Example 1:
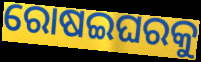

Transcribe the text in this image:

ରୋଷଇଘରକୁ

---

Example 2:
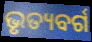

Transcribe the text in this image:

ଭୃତ୍ୟବର୍ଗ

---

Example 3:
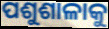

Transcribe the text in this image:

ପଶୁଶାଳାକୁ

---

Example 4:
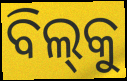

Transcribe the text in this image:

ବିଲ୍‌କୁ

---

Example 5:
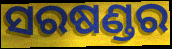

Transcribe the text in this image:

ସରଷଣ୍ଡର